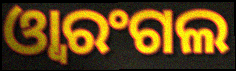
ଓ୍ୱାରଂଗଲ